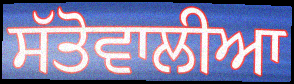
ਸੱਤੋਵਾਲੀਆ